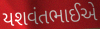
યશવંતભાઈએ